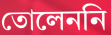
তোলেননি